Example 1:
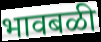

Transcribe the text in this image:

भावबळी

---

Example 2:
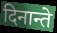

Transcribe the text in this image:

दिनान्ते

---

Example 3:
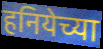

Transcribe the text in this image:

हनियेच्या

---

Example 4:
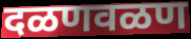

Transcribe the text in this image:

दळणवळण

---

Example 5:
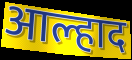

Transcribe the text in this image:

आल्हाद